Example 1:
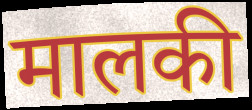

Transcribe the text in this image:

मालकी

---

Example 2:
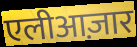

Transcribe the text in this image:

एलीआज़ार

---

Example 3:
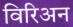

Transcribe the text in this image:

विरिअन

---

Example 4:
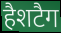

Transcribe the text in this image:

हैशटैग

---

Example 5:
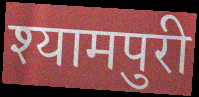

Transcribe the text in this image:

श्यामपुरी